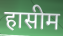
हासीम